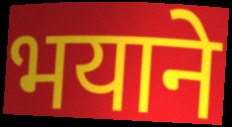
भयाने